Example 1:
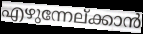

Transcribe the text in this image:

എഴുന്നേല്ക്കാൻ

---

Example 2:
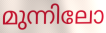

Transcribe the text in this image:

മുന്നിലോ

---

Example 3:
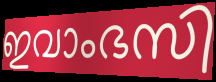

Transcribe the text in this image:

ഇവാംഭസി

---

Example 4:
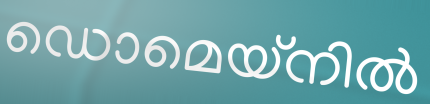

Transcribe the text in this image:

ഡൊമെയ്നിൽ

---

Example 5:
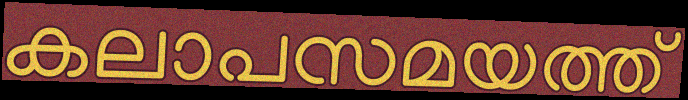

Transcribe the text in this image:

കലാപസമയത്ത്